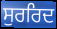
ਸੁਰਰਿਦ